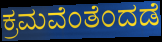
ಕ್ರಮವೆಂತೆಂದಡೆ